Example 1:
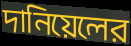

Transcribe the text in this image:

দানিয়েলের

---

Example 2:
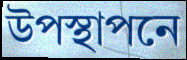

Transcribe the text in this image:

উপস্থাপনে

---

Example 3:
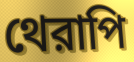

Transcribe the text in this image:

থেরাপি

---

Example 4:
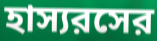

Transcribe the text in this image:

হাস্যরসের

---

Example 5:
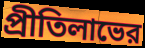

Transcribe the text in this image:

প্রীতিলাভের